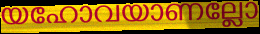
യഹോവയാണല്ലോ